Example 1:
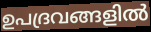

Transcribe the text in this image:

ഉപദ്രവങ്ങളിൽ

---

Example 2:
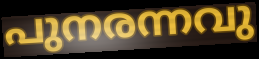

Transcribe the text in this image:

പുനരന്നവു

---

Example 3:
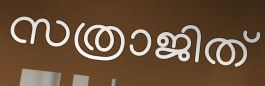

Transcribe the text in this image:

സത്രാജിത്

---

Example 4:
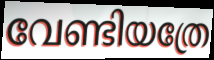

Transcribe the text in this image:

വേണ്ടിയത്രേ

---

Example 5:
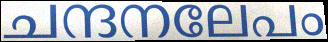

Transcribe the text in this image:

ചന്ദനലേപം